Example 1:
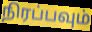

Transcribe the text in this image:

நிரப்பவும்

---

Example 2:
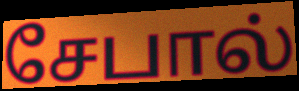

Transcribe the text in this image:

சேபால்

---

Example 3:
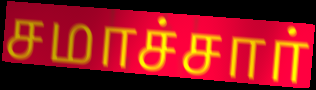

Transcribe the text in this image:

சமாச்சார்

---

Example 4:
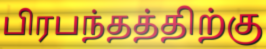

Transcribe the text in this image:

பிரபந்தத்திற்கு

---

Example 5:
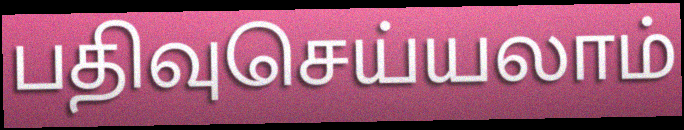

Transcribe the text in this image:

பதிவுசெய்யலாம்